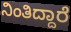
ನಿಂತಿದ್ದಾರೆ